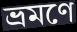
ভ্রমণে